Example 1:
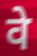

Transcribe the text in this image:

वे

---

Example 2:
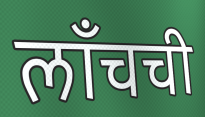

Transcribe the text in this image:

लाँचची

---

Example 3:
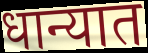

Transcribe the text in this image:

धान्यात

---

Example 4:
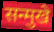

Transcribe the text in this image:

सन्मुखे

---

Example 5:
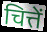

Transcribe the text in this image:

चित्तें